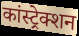
कांस्ट्रेक्शन